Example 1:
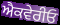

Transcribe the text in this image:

ਐਕਵੇਰੀਓ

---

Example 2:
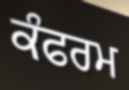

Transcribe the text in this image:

ਕੰਫਰਮ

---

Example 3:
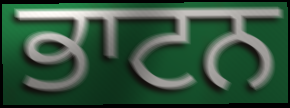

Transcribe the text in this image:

ਭਾਟਨ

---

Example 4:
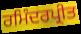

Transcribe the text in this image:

ਰਮਿੰਦਰਪ੍ਰੀਤ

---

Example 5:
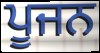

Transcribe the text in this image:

ਪੂਜਨ